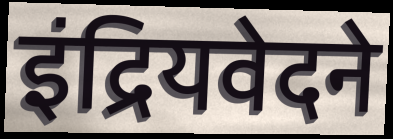
इंद्रियवेदने